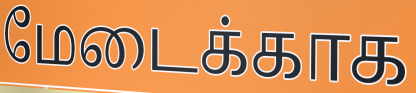
மேடைக்காக